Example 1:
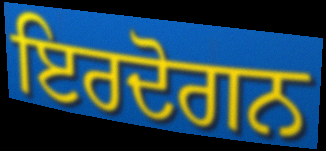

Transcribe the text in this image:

ਇਰਦੋਗਨ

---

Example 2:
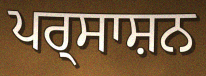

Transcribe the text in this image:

ਪਰ੍ਸਾਸ਼ਨ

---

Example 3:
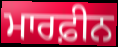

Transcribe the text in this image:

ਮਾਰਫ਼ੀਨ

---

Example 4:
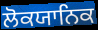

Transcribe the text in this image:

ਲੋਕਯਾਨਿਕ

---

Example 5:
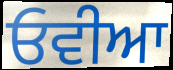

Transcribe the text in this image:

ਓਵੀਆ